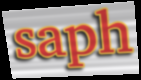
saph